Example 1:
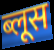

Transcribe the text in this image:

ब्लूस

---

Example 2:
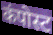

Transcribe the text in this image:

कंपोस्ट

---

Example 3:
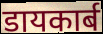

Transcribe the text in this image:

डायकार्ब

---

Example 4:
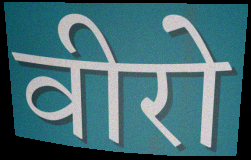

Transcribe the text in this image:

वीरो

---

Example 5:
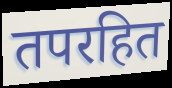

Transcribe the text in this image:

तपरहित